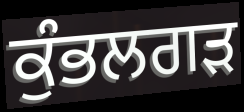
ਕੁੰਭਲਗੜ